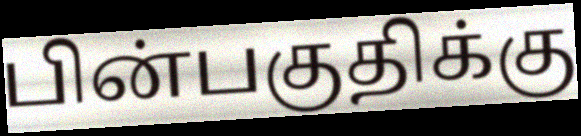
பின்பகுதிக்கு